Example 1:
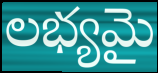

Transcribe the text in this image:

లభ్యమై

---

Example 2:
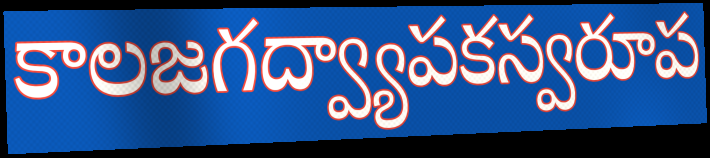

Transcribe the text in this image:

కాలజగద్వ్యాపకస్వరూప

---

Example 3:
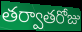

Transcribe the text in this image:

తర్వాతరోజు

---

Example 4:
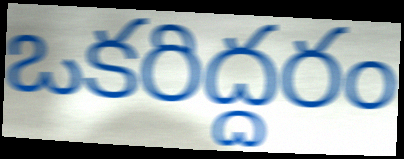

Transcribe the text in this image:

ఒకరిద్దరం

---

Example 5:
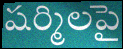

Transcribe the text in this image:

షర్మిలపై